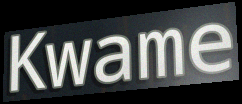
Kwame